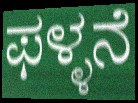
ಫಳ್ಳನೆ